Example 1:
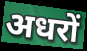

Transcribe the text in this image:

अधरों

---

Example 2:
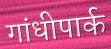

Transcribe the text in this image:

गांधीपार्क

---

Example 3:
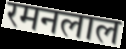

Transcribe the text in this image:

रमनलाल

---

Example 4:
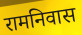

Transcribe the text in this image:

रामनिवास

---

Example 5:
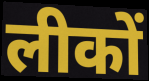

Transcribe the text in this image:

लीकों